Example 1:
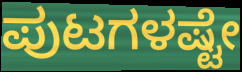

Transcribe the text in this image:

ಪುಟಗಳಷ್ಟೇ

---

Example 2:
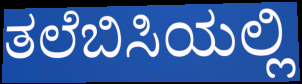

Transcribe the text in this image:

ತಲೆಬಿಸಿಯಲ್ಲಿ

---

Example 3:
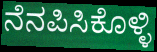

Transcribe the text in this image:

ನೆನಪಿಸಿಕೊಳ್ಳಿ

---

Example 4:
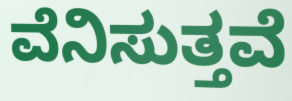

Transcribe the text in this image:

ವೆನಿಸುತ್ತವೆ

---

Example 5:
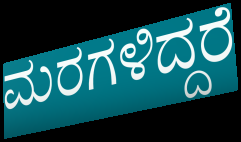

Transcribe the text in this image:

ಮರಗಳಿದ್ದರೆ